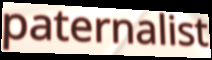
paternalist